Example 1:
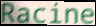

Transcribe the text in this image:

Racine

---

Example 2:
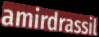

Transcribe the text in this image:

amirdrassil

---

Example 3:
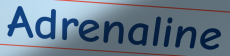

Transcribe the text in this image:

Adrenaline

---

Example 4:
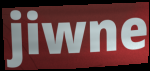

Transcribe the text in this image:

jiwne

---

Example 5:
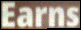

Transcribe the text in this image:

Earns